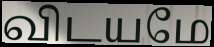
விடயமே